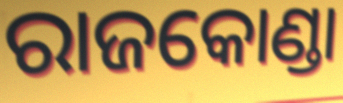
ରାଜକୋଣ୍ଡା